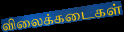
விலைக்கடைகள்